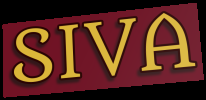
SIVA